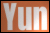
Yun